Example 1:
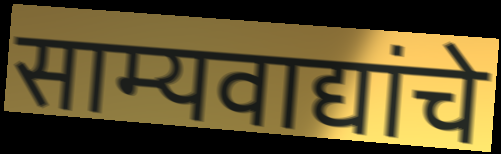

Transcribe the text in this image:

साम्यवाद्यांचे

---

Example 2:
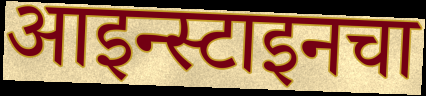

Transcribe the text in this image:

आइन्स्टाइनचा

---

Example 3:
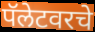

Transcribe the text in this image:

पॅलेटवरचे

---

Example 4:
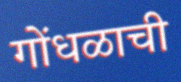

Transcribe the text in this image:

गोंधळाची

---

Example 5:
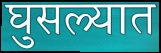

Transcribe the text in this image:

घुसल्यात